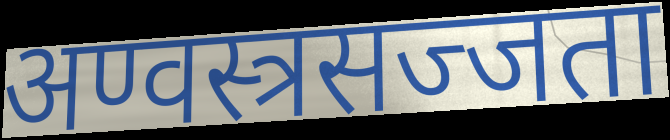
अण्वस्त्रसज्जता